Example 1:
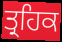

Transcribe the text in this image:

ਤ੍ਰਹਿਕ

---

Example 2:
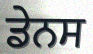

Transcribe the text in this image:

ਡੇਨਸ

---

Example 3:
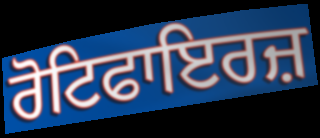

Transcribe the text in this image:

ਰੋਟਿਫਾਇਰਜ਼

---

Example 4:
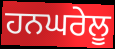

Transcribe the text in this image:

ਹਨਘਰੇਲੂ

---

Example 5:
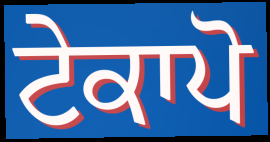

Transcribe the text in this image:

ਟੇਕਾਪੋ